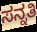
ಸನ್ನತಿ